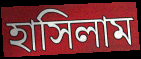
হাসিলাম